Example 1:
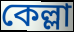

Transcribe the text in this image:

কেল্লা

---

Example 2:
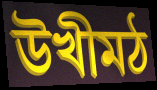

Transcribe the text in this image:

উখীমঠ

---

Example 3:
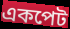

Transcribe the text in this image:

একপেট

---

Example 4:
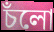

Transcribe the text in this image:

চঁলো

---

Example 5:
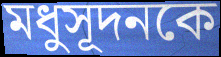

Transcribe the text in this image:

মধুসূদনকে